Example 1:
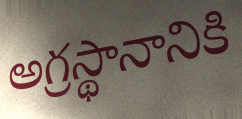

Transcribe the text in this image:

అగ్రస్థానానికి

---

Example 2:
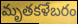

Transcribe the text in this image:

మృతకళేబరం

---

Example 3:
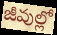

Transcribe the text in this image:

జీవుల్లో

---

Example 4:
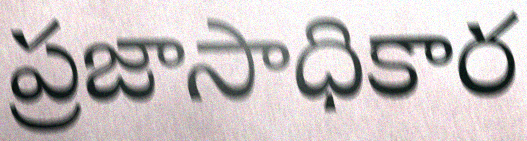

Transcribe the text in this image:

ప్రజాసాధికార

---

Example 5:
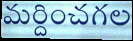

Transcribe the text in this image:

మర్దించగల